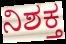
ನಿಶಕ್ತ